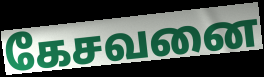
கேசவனை